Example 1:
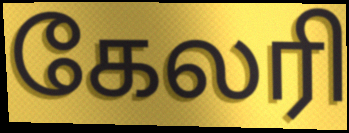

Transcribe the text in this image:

கேலரி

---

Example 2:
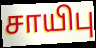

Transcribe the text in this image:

சாயிபு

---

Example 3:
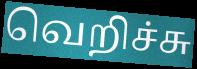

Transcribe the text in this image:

வெறிச்சு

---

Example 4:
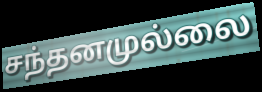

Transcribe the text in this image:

சந்தனமுல்லை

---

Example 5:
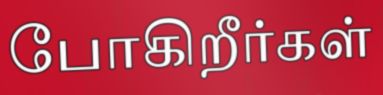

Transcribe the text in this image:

போகிறீர்கள்